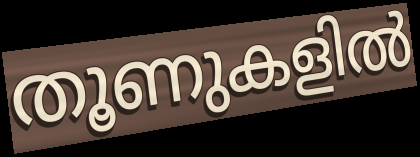
തൂണുകളിൽ